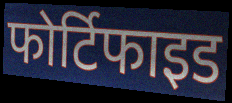
फोर्टिफाइड